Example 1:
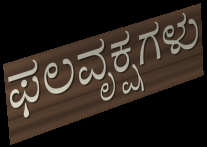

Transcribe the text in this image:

ಫಲವೃಕ್ಷಗಳು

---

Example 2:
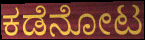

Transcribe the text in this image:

ಕಡೆನೋಟ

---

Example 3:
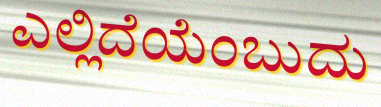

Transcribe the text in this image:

ಎಲ್ಲಿದೆಯೆಂಬುದು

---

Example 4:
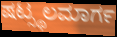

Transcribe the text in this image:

ಷಟ್ಸ್ಥಲಮಾರ್ಗ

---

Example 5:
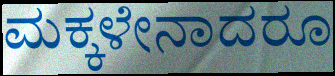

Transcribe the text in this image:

ಮಕ್ಕಳೇನಾದರೂ